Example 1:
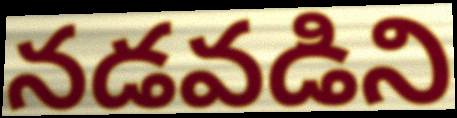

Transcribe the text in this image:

నడవడిని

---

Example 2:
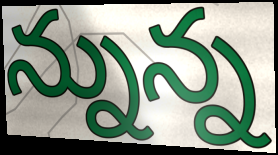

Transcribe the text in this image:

న్నున్న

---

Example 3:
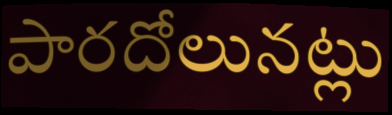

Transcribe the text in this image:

పారదోలునట్లు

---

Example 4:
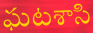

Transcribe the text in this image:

ఘటశాసి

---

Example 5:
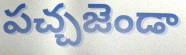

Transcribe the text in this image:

పచ్చజెండా